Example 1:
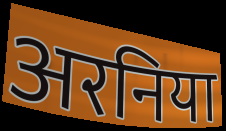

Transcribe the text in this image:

अरनिया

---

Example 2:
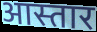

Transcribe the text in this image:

आस्तार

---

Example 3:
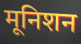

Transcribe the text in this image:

मूनिशन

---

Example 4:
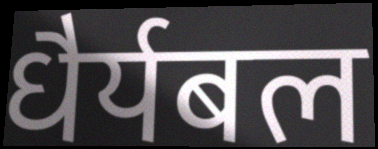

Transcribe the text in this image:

धैर्यबल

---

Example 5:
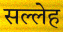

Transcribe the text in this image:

सल्लेह